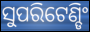
ସୁପରିଟେଣ୍ଡିଂ